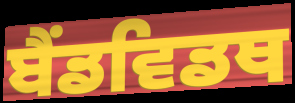
ਬੈਂਡਵਿਡਥ